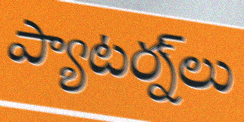
ప్యాటర్న్‌లు